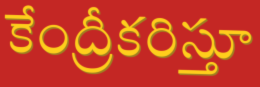
కేంద్రీకరిస్తూ